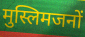
मुस्लिमजनों